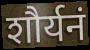
शौर्यनं